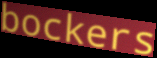
bockers